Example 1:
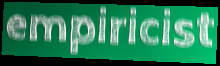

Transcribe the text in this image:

empiricist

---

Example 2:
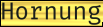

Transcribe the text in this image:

Hornung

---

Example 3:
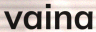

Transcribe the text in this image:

vaina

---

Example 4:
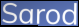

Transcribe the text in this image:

Sarod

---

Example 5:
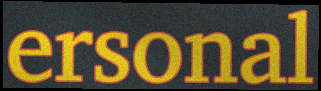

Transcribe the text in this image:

ersonal